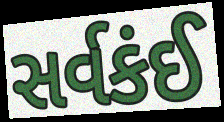
સર્વકંઈ